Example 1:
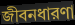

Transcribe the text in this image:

জীবনধারণা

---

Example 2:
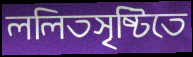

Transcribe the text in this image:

ললিতসৃষ্টিতে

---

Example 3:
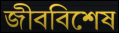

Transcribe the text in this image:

জীববিশেষ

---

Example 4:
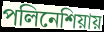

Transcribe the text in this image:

পলিনেশিয়ায়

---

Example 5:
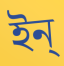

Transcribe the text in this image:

ইন্